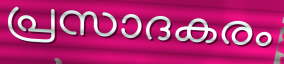
പ്രസാദകരം